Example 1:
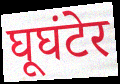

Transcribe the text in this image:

घूघंटेर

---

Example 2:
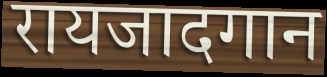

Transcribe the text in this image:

रायजादगान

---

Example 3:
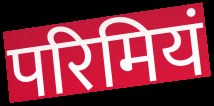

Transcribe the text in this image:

परिमियं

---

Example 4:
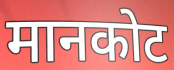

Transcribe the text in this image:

मानकोट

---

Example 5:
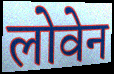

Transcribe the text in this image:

लोवेन